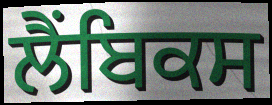
ਲੈਂਬਿਕਸ